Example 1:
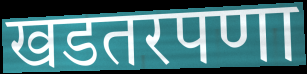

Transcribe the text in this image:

खडतरपणा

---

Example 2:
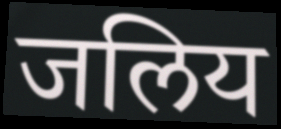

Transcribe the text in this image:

जलिय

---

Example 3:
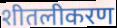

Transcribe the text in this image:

शीतलीकरण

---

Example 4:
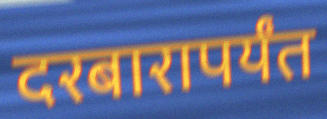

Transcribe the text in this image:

दरबारापर्यंत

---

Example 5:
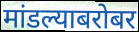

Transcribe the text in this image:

मांडल्याबरोबर